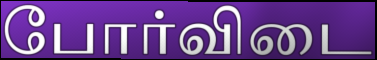
போர்விடை